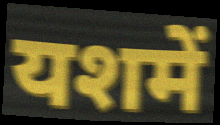
यशमें